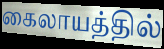
கைலாயத்தில்